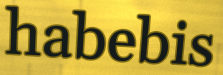
habebis